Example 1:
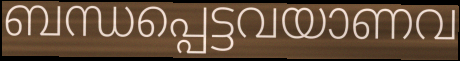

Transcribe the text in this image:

ബന്ധപ്പെട്ടവയാണവ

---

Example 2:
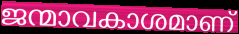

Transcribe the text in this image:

ജന്മാവകാശമാണ്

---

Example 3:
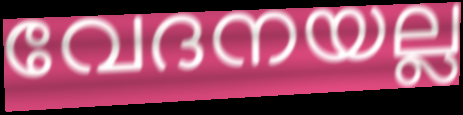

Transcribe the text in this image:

വേദനയല്ല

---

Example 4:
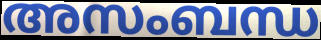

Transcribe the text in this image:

അസംബന്ധ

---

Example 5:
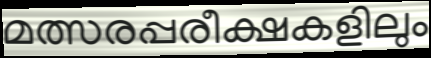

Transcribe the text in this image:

മത്സരപ്പരീക്ഷകളിലും